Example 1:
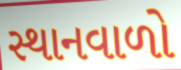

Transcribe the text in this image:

સ્થાનવાળો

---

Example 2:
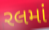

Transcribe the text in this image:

રલમાં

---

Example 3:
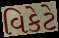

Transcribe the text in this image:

વિકેટે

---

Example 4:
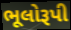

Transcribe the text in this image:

ભૂલોરૂપી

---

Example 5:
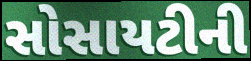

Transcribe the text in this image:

સોસાયટીની